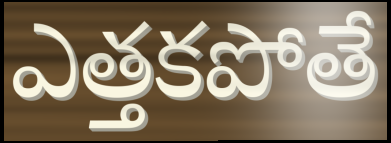
ఎత్తకపోతే